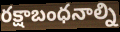
రక్షాబంధనాల్ని